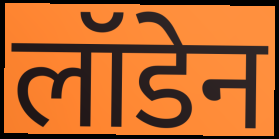
लॉडेन